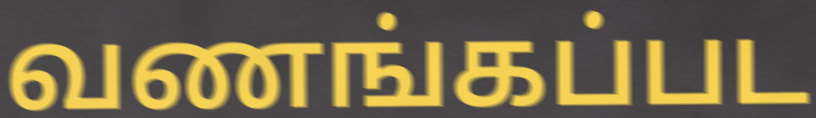
வணங்கப்பட